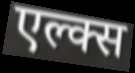
एल्क्स